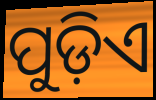
ପୁଡ଼ିଏ